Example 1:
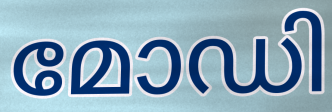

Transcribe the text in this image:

മോഡി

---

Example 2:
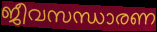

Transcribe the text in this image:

ജീവസന്ധാരണ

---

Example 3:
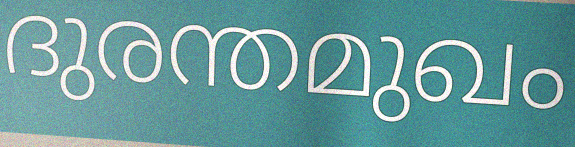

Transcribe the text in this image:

ദുരന്തമുഖം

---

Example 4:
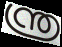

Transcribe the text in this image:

ന്ത്ര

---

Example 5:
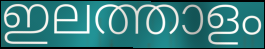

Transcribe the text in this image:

ഇലത്താളം